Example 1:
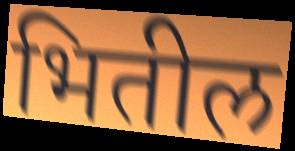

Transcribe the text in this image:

भितील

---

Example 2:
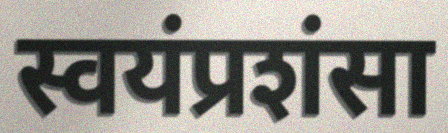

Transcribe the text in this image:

स्वयंप्रशंसा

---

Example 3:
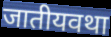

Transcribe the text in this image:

जातीयवथा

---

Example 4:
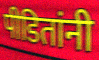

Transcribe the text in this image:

पीडितांनी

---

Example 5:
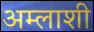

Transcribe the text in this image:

अम्लाशी